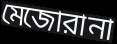
মেজোরানা